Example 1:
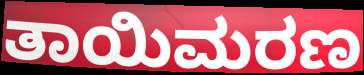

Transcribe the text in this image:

ತಾಯಿಮರಣ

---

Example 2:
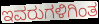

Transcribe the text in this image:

ಇವರುಗಳಿಗಿಂತ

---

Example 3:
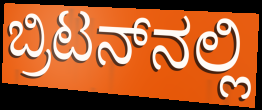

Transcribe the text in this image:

ಬ್ರಿಟನ್‌ನಲ್ಲಿ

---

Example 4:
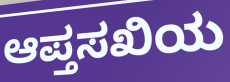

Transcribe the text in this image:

ಆಪ್ತಸಖಿಯ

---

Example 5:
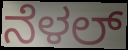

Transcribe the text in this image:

ನೆಳಲ್